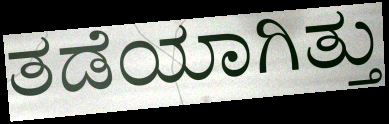
ತಡೆಯಾಗಿತ್ತು